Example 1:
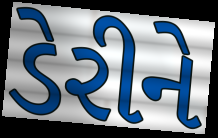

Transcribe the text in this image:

ડેરીને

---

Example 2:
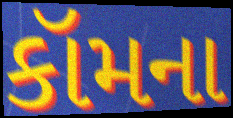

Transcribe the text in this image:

કૉમના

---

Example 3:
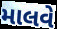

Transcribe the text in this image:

માલવે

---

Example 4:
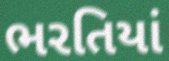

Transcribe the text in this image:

ભરતિયાં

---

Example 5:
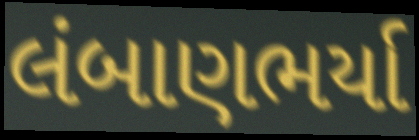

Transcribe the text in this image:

લંબાણભર્યા